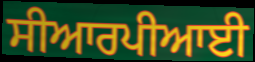
ਸੀਆਰਪੀਆਈ